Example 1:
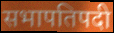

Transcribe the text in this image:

सभापतिपदी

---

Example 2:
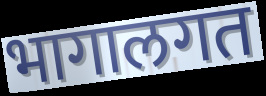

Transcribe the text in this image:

भागालगत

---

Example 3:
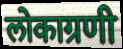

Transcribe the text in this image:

लोकाग्रणी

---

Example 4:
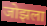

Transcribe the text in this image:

जोझला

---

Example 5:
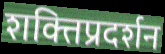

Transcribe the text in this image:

शक्तिप्रदर्शन